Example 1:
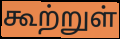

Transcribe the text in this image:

கூற்றுள்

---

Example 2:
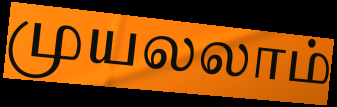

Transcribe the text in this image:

முயலலாம்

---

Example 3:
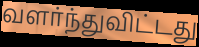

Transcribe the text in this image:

வளர்ந்துவிட்டது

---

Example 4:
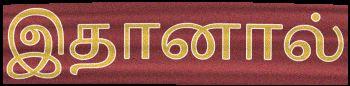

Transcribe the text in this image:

இதானால்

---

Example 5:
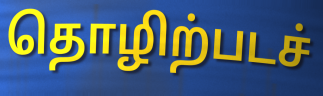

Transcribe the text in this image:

தொழிற்படச்